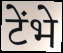
टेंभे